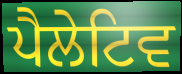
ਪੈਲੇਟਿਵ